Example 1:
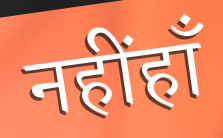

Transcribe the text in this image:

नहींहाँ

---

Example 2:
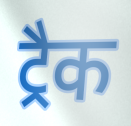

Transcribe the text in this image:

ट्रैक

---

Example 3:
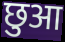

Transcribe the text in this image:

छुआ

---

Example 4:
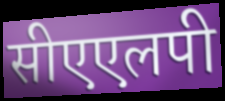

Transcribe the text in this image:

सीएएलपी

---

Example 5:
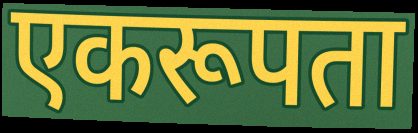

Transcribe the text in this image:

एकरूपता